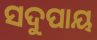
ସଦୁପାୟ